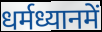
धर्मध्यानमें